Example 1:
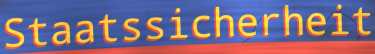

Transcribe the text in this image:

Staatssicherheit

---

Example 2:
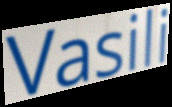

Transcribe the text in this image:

Vasili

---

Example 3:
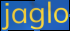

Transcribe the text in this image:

jaglo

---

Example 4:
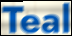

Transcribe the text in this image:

Teal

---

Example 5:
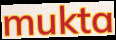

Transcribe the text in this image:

mukta